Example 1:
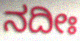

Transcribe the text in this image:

ನದೀಃ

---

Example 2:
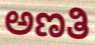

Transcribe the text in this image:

ಅಣತಿ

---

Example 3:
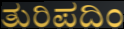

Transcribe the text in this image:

ತುರಿಪದಿಂ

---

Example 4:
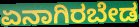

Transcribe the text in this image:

ಏನಾಗಿರಬೇಡ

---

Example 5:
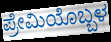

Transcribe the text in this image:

ಪ್ರೇಮಿಯೊಬ್ಬಳ